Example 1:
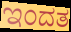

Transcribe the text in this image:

ಇಂದತ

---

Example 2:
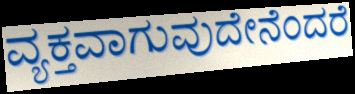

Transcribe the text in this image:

ವ್ಯಕ್ತವಾಗುವುದೇನೆಂದರೆ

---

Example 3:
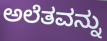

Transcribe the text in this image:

ಅಲೆತವನ್ನು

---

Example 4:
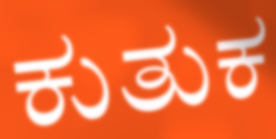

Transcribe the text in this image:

ಕುತುಕ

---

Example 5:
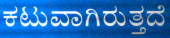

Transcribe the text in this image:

ಕಟುವಾಗಿರುತ್ತದೆ